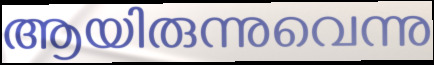
ആയിരുന്നുവെന്നു